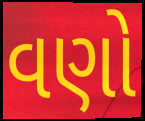
વણો